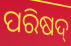
ପରିଷଦ୍